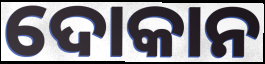
ଦୋକାନ